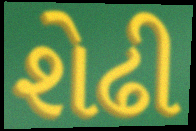
શેઢી